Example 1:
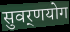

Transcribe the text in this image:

सुवर्णयोग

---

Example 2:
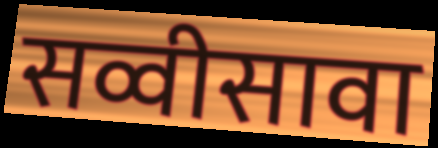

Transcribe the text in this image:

सव्वीसावा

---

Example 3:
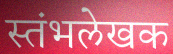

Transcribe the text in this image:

स्तंभलेखक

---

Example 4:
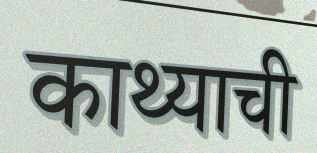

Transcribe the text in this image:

काथ्याची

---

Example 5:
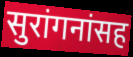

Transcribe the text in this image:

सुरांगनांसह